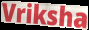
Vriksha